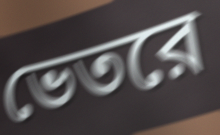
ভেতরে